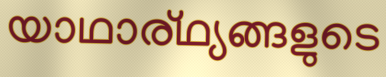
യാഥാര്ഥ്യങ്ങളുടെ